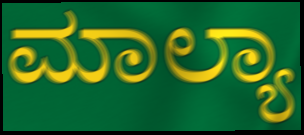
ಮಾಲ್ಯಾ